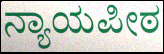
ನ್ಯಾಯಪೀಠ